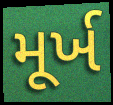
મૂર્ખ